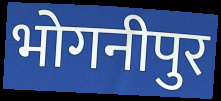
भोगनीपुर